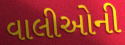
વાલીઓની